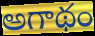
అగాథం